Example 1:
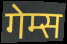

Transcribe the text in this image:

गेम्स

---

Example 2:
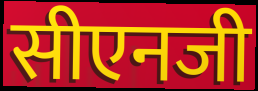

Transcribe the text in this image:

सीएनजी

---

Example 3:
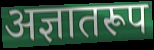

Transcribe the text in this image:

अज्ञातरूप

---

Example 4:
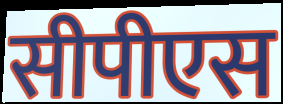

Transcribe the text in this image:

सीपीएस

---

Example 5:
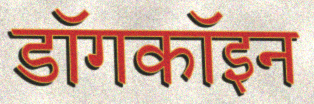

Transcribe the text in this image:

डॉगकॉइन